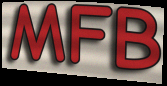
MFB